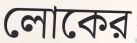
লোকের